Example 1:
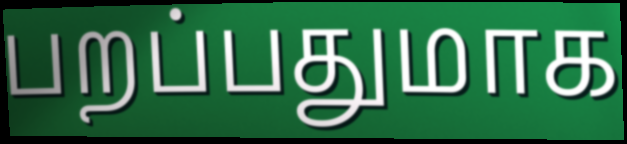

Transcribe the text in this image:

பறப்பதுமாக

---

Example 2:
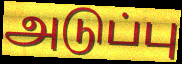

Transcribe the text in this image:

அடுப்பு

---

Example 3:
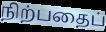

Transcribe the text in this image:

நிற்பதைப்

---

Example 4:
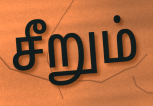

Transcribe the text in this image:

சீறும்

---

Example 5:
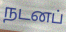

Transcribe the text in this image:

நடனப்